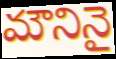
మౌనినై